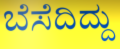
ಬೆಸೆದಿದ್ದು